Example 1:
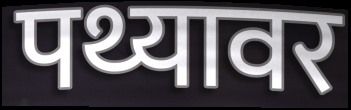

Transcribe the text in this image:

पथ्यावर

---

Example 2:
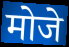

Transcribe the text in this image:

मोजे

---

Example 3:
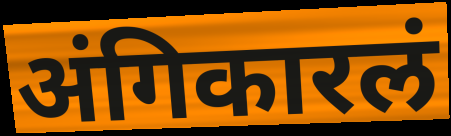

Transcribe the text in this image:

अंगिकारलं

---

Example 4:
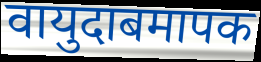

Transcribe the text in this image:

वायुदाबमापक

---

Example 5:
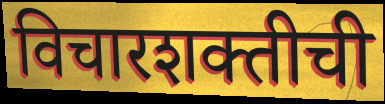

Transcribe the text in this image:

विचारशक्तीची